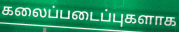
கலைப்படைப்புகளாக